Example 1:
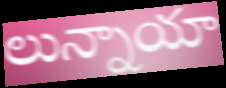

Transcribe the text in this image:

లున్నాయా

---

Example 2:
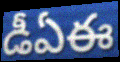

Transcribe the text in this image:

డీఏఈ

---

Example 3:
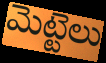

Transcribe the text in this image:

మెట్టెలు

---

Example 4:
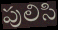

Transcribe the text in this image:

పులిసి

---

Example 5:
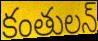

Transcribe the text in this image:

కంతులన్